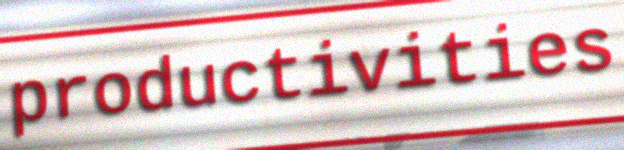
productivities